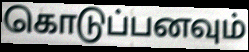
கொடுப்பனவும்